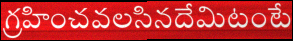
గ్రహించవలసినదేమిటంటే